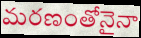
మరణంతోనైనా